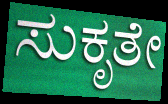
ಸುಕೃತೇ